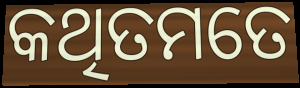
କଥିତମତେ